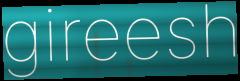
gireesh